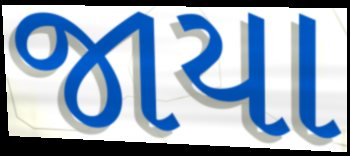
જાયા